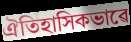
ঐতিহাসিকভাৱে